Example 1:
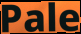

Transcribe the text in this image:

Pale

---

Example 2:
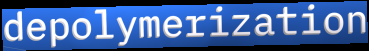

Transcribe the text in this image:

depolymerization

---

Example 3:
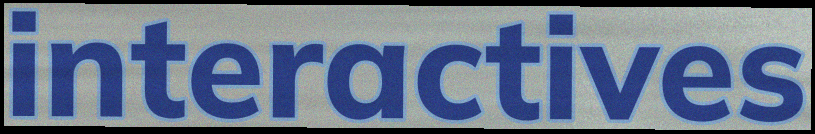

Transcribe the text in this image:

interactives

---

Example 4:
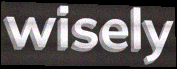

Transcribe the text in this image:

wisely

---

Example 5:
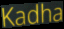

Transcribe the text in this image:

Kadha